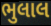
ભુલાલ